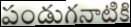
పండుగనాటికి